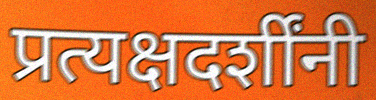
प्रत्यक्षदर्शींनी